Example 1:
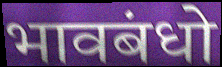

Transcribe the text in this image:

भावबंधो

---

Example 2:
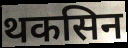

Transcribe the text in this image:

थकसिन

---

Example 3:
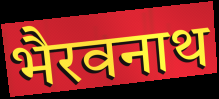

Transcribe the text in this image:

भैरवनाथ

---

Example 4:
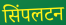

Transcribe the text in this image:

सिंपलटन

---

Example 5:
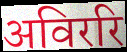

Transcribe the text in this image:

अविररि